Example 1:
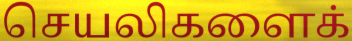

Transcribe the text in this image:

செயலிகளைக்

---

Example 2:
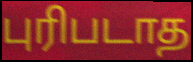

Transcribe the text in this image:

புரிபடாத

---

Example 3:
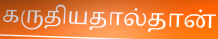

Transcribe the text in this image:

கருதியதால்தான்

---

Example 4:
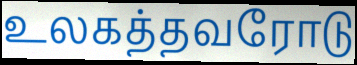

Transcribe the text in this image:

உலகத்தவரோடு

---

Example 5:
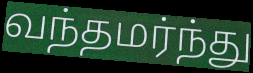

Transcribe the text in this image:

வந்தமர்ந்து